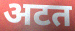
अटत